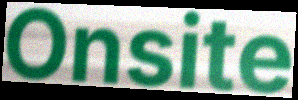
Onsite